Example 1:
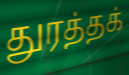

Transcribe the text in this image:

துரத்தக்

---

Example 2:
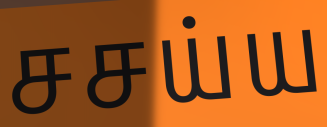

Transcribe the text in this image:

சசய்ய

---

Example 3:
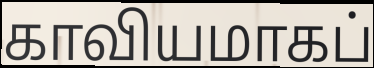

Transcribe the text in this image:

காவியமாகப்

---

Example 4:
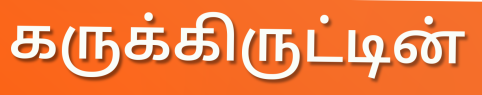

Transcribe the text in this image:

கருக்கிருட்டின்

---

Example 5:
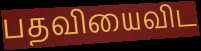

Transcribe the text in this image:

பதவியைவிட